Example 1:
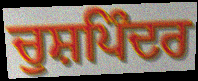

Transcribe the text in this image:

ਚੁਸ਼ਪਿੰਦਰ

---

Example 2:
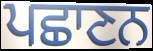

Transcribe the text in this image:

ਪਛਾਣਨ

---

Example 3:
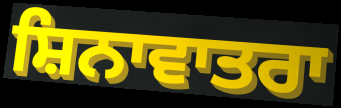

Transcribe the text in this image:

ਸ਼ਿਨਾਵਾਤਰਾ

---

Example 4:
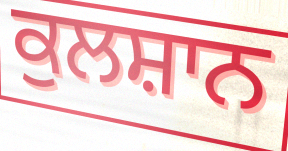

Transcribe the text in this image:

ਕੁਲਸ਼ਾਨ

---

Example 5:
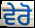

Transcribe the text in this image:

ਵੇਰੋ